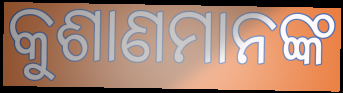
କୁଶାଣମାନଙ୍କ